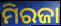
ମିରଜା